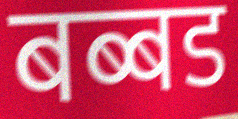
बब्बड